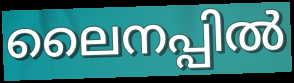
ലൈനപ്പിൽ